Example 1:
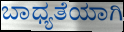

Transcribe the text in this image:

ಬಾಧ್ಯತೆಯಾಗಿ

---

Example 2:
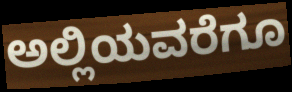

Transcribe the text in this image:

ಅಲ್ಲಿಯವರೆಗೂ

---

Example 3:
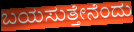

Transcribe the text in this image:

ಬಯಸುತ್ತೇನೆಂದು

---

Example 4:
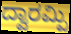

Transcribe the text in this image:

ದ್ವಾರಮ್ಪಿ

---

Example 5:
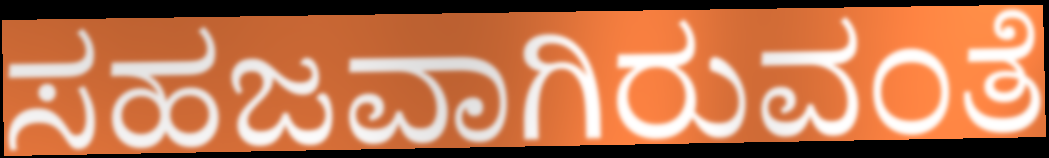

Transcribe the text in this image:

ಸಹಜವಾಗಿರುವಂತೆ